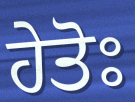
ਹੇਤੋਃ